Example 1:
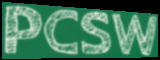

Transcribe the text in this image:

PCSW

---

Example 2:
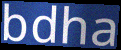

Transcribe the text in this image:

bdha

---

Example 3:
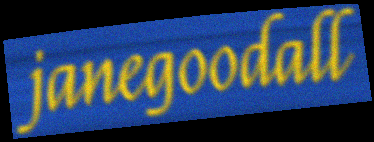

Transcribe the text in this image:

janegoodall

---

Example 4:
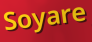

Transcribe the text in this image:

Soyare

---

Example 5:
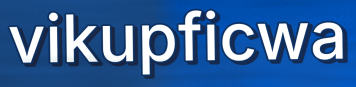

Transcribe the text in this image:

vikupficwa